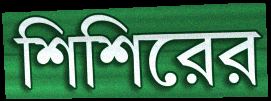
শিশিরের